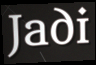
Jadi